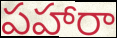
పహారా